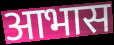
आभास